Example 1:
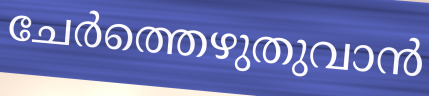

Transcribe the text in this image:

ചേർത്തെഴുതുവാൻ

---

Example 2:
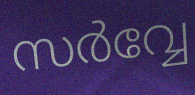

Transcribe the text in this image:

സർവ്വേ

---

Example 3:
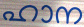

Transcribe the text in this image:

ഹാന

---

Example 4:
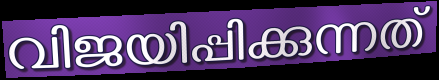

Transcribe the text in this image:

വിജയിപ്പിക്കുന്നത്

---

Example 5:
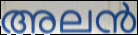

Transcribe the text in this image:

അലൻ